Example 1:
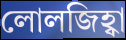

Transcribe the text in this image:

লোলজিহ্বা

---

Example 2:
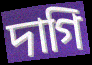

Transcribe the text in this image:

দাগি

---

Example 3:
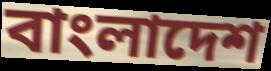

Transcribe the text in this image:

বাংলাদেশ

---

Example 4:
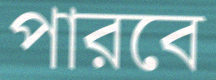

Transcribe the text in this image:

পারবে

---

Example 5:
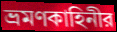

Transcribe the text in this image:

ভ্রমণকাহিনীর